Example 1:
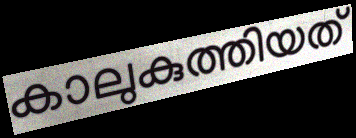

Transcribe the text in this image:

കാലുകുത്തിയത്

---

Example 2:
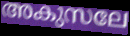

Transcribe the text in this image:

അകുസലേ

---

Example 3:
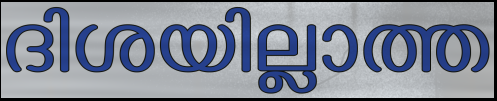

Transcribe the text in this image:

ദിശയില്ലാത്ത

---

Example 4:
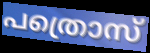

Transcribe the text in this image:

പത്രൊസ്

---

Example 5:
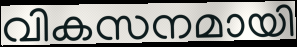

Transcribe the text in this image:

വികസനമായി